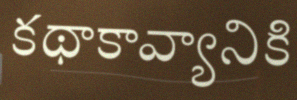
కథాకావ్యానికి